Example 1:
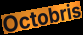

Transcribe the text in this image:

Octobris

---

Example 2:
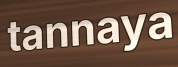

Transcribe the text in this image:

tannaya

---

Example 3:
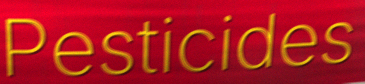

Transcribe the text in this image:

Pesticides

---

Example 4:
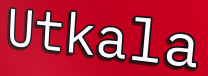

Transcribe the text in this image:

Utkala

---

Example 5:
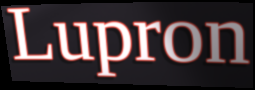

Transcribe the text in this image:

Lupron